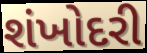
શંખોદરી